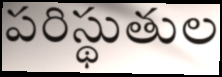
పరిస్థుతుల